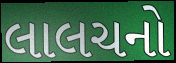
લાલચનો